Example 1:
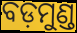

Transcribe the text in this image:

ବଡ଼ମୁଣ୍ଡ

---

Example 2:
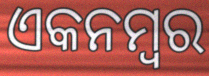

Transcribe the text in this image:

ଏକନମ୍ବର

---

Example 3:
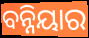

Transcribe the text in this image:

ବନ୍ନିୟାର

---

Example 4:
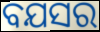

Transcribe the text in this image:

ବଯସର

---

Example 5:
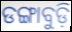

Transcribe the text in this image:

ଡଙ୍ଗାବୁଡ଼ି